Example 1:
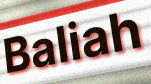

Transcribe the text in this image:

Baliah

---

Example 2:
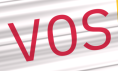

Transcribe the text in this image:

VOS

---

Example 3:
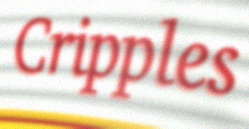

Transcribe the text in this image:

Cripples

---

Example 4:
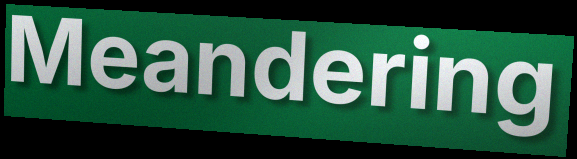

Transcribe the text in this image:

Meandering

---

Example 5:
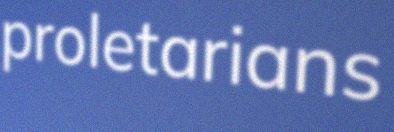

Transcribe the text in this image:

proletarians